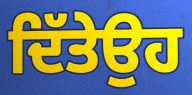
ਦਿੱਤੇਉਹ